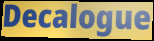
Decalogue